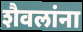
शैवलांना